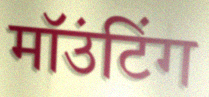
मॉउंटिंग